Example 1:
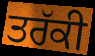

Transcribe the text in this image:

ਤਰੱਕੀ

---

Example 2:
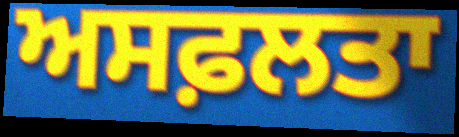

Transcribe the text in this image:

ਅਸਫ਼ਲਤਾ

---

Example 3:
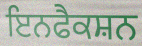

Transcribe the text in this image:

ਇਨਫੈਕਸ਼ਨ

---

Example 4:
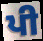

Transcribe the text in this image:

ਪੀ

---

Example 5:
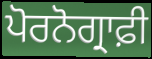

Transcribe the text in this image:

ਪੋਰਨੋਗ੍ਰਾਫ਼ੀ